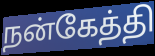
நன்கேத்தி